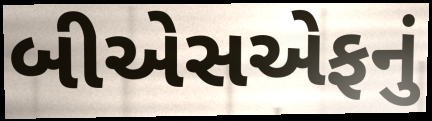
બીએસએફનું